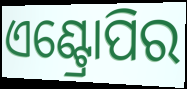
ଏଣ୍ଟ୍ରୋପିର